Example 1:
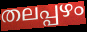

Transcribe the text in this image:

തലപ്പഴം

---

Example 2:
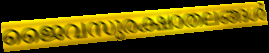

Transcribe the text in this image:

ജൈവസുരക്ഷാതലങ്ങൾ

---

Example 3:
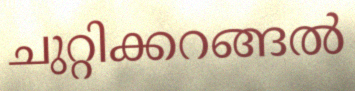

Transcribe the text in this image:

ചുറ്റിക്കറങ്ങൽ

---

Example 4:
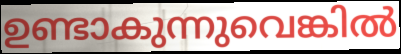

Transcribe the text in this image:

ഉണ്ടാകുന്നുവെങ്കിൽ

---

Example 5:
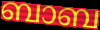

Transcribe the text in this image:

ബാബ